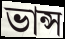
ভান্স